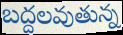
బద్దలవుతున్న